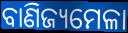
ବାଣିଜ୍ୟମେଳା